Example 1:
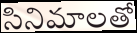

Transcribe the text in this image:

సినిమాలతో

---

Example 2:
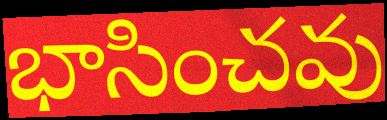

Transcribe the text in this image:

భాసించవు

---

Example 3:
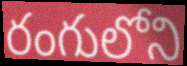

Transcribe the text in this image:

రంగులోని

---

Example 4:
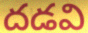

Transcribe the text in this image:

దడవి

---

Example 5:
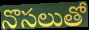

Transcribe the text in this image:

నొసలుతో